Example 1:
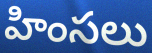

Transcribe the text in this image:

హింసలు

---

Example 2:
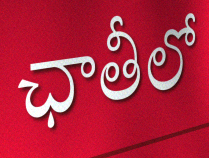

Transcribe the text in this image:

ఛాతీలో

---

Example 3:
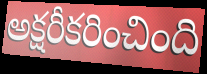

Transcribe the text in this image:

అక్షరీకరించింది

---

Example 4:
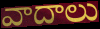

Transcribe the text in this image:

వాదాలు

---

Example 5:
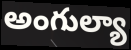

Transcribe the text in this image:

అంగుల్యా